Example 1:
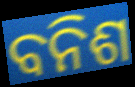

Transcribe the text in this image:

ବନିଶ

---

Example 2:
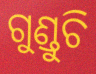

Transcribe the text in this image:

ଗୁଣ୍ଡୁଚି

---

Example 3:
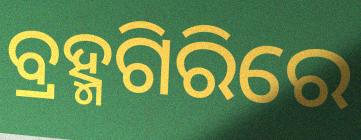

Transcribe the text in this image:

ବ୍ରହ୍ମଗିରିରେ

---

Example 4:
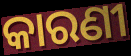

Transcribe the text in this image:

କାରଣୀ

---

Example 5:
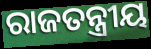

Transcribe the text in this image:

ରାଜତନ୍ତ୍ରୀୟ